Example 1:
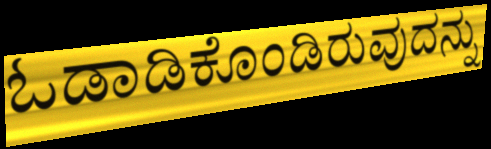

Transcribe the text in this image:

ಓಡಾಡಿಕೊಂಡಿರುವುದನ್ನು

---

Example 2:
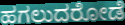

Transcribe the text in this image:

ಹಗಲುದರೋಡೆ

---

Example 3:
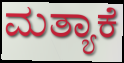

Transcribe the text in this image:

ಮತ್ಯಾಕೆ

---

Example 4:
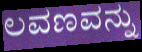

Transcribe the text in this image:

ಲವಣವನ್ನು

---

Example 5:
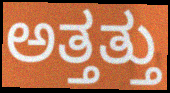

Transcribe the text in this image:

ಅತ್ತತ್ತು